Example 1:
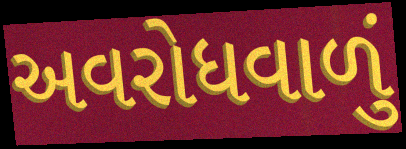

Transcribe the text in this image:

અવરોધવાળું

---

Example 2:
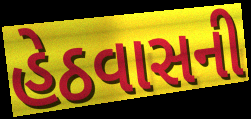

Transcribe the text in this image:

હેઠવાસની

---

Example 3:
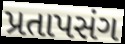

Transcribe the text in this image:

પ્રતાપસંગ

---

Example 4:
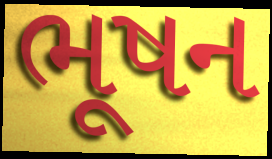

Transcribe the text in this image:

ભૂષન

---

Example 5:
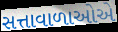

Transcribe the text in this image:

સત્તાવાળાઓએ